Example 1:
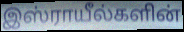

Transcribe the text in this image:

இஸ்ராயீல்களின்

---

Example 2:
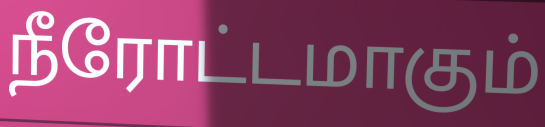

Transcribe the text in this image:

நீரோட்டமாகும்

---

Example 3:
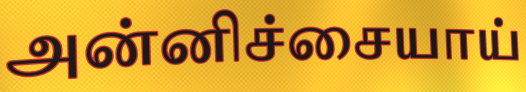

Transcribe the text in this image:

அன்னிச்சையாய்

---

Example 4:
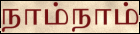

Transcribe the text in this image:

நாம்நாம்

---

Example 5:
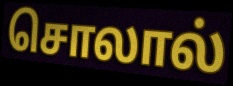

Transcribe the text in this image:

சொலால்